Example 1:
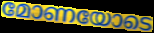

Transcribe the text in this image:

മോണയോടെ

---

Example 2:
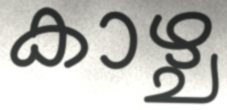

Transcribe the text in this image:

കാഴ്ച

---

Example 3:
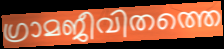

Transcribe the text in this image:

ഗ്രാമജീവിതത്തെ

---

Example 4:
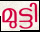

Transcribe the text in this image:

മുട്ടി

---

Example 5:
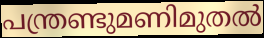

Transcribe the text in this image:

പന്ത്രണ്ടുമണിമുതൽ